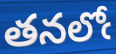
తనలోఁ